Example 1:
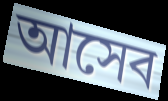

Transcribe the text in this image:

আসেব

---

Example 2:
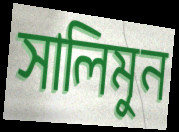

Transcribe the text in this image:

সালিমুন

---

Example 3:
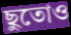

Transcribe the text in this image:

ছুতোও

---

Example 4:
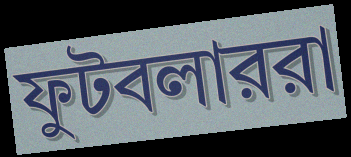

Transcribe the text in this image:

ফুটবলাররা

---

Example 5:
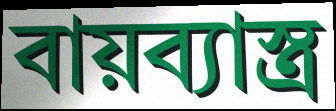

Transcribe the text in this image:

বায়ব্যাস্ত্র